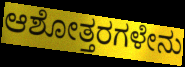
ಆಶೋತ್ತರಗಳೇನು